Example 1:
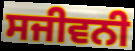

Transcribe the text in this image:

ਸਜੀਵਨੀ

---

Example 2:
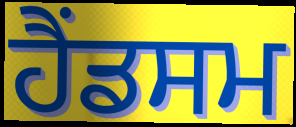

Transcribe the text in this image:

ਹੈਂਡਸਮ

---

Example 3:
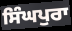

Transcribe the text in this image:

ਸਿੰਘਪੁਰਾ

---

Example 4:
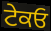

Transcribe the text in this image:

ਟੇਕਓ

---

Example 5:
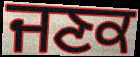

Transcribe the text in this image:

ਜਣਕ